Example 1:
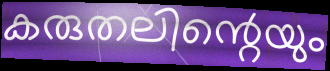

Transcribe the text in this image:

കരുതലിന്റെയും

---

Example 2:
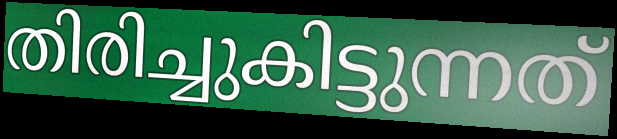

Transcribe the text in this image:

തിരിച്ചുകിട്ടുന്നത്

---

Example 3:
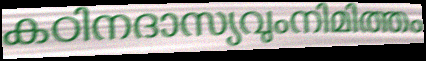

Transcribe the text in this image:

കഠിനദാസ്യവുംനിമിത്തം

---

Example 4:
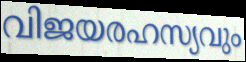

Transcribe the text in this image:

വിജയരഹസ്യവും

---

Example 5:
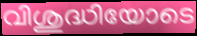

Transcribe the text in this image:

വിശുദ്ധിയോടെ